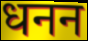
धनन